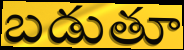
బడుతూ